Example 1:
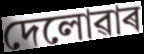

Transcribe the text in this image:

দেলোৱাৰ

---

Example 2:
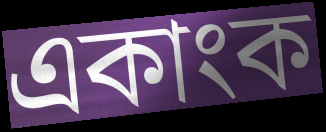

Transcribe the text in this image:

একাংক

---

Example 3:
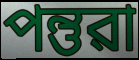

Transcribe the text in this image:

পন্তুৱা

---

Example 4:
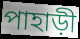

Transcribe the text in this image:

পাহাড়ী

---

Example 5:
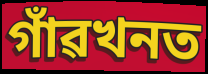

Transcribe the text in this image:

গাঁৱখনত